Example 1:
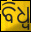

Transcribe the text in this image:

ବିଧ୍ଵ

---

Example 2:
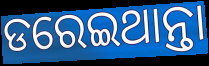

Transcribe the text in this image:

ଡରେଇଥାନ୍ତା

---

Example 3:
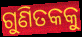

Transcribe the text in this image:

ଗୁଣିତକକୁ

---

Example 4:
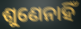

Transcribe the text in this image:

ଶୁଣେନାହିଁ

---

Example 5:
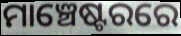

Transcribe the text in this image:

ମାଞ୍ଚେଷ୍ଟରରେ